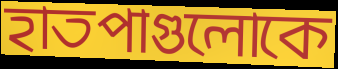
হাতপাগুলোকে